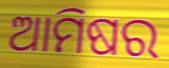
ଆମିଷର